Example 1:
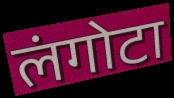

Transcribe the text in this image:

लंगोटा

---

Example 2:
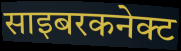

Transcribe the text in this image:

साइबरकनेक्ट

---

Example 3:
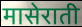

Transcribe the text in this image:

मासेराती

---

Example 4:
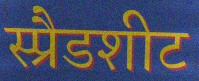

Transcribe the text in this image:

स्प्रैडशीट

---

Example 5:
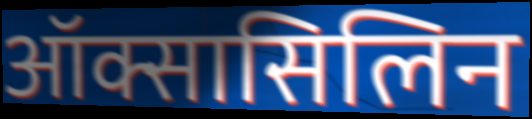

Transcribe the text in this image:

ऑक्सासिलिन